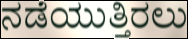
ನಡೆಯುತ್ತಿರಲು